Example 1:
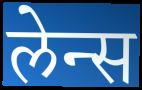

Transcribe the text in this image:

लेन्स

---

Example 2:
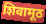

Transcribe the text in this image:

शिवामूठ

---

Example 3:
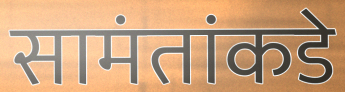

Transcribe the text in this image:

सामंतांकडे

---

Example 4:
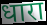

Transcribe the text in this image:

धारा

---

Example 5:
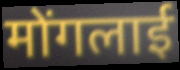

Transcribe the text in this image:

मोंगलाई